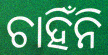
ଚାହିଁନି